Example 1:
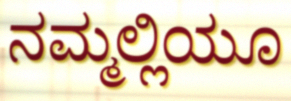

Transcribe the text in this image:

ನಮ್ಮಲ್ಲಿಯೂ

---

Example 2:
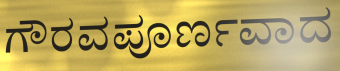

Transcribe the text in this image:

ಗೌರವಪೂರ್ಣವಾದ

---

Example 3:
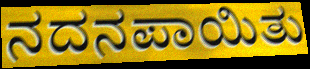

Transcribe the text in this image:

ನದನಪಾಯಿತು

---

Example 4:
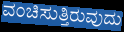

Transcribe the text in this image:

ವಂಚಿಸುತ್ತಿರುವುದು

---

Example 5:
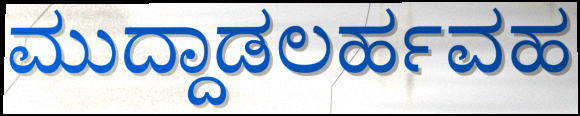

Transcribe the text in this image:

ಮುದ್ದಾಡಲರ್ಹವಹ